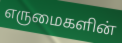
எருமைகளின்